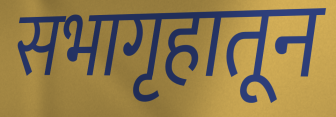
सभागृहातून